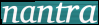
nantra